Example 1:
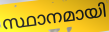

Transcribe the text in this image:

സ്ഥാനമായി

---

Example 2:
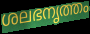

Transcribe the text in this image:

ശലഭനൃത്തം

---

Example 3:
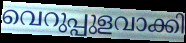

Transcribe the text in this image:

വെറുപ്പുളവാക്കി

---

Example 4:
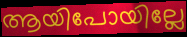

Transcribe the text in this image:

ആയിപോയില്ലേ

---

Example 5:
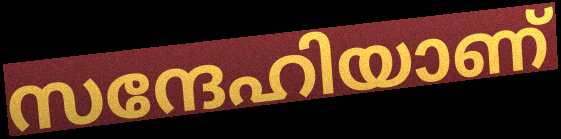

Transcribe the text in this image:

സന്ദേഹിയാണ്